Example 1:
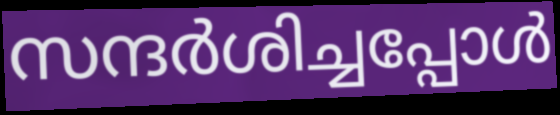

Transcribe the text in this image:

സന്ദർശിച്ചപ്പോൾ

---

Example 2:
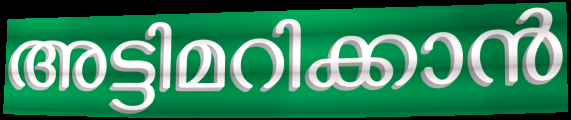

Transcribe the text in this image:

അട്ടിമറിക്കാൻ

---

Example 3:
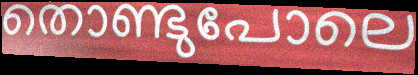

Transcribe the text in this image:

തൊണ്ടുപോലെ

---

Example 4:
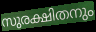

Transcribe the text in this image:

സുരക്ഷിതനും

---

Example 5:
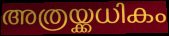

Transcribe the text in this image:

അത്രയ്ക്കധികം